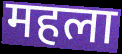
महला